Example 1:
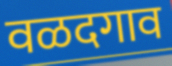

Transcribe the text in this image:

वळदगाव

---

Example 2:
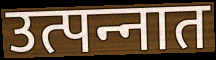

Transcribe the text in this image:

उत्पन्नात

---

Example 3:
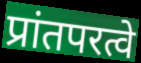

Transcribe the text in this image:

प्रांतपरत्वे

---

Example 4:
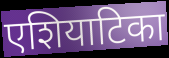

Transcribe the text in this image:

एशियाटिका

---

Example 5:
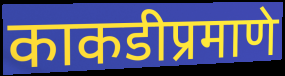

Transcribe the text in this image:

काकडीप्रमाणे